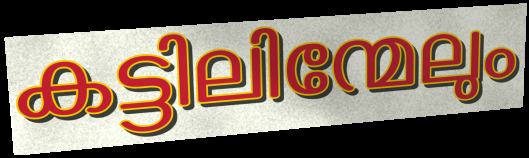
കട്ടിലിന്മേലും